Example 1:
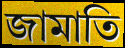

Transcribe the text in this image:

জামাতি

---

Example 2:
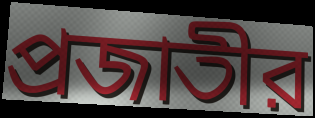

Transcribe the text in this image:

প্রজাতীর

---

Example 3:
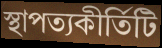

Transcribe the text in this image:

স্থাপত্যকীর্তিটি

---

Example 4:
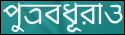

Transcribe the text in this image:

পুত্রবধূরাও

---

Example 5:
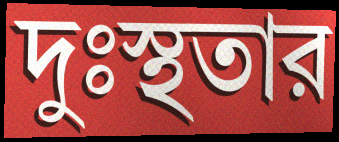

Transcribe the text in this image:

দুঃস্থতার